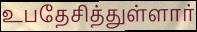
உபதேசித்துள்ளார்